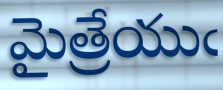
మైత్రేయుఁ